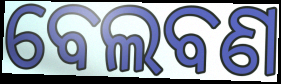
ବେଲବଣ